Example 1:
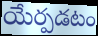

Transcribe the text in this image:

యేర్పడటం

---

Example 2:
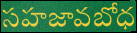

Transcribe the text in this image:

సహజావబోధ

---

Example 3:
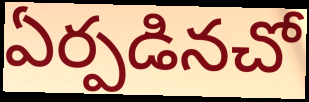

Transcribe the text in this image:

ఏర్పడినచో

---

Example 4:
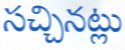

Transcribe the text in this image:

సచ్చినట్లు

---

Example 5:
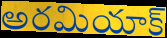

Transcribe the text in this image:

అరమియాక్